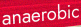
anaerobic